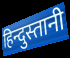
हिन्‍दुस्‍तानी